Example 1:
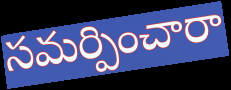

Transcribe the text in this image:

సమర్పించారా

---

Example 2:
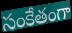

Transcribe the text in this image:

సంకేతంగా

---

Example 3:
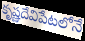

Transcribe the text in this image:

కృష్ణదేవిపేటలోనే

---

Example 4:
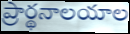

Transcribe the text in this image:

ప్రార్థనాలయాల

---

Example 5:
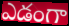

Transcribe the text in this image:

ఎడంగా